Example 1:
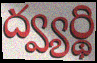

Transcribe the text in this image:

ద్వ్యర్థి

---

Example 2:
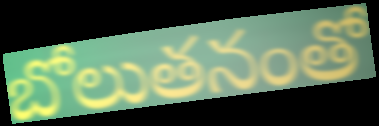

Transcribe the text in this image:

బోలుతనంతో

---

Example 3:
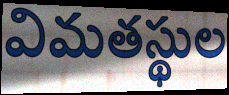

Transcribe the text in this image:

విమతస్థుల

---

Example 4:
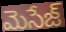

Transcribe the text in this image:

మెసేజ్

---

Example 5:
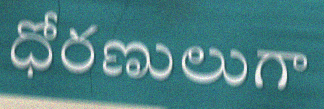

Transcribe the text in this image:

ధోరణులుగా